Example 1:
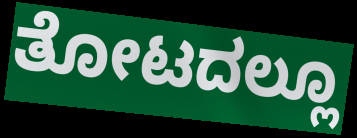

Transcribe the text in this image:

ತೋಟದಲ್ಲೂ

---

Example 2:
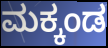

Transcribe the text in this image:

ಮಕ್ಕಂಡ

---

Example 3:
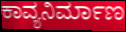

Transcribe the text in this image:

ಕಾವ್ಯನಿರ್ಮಾಣ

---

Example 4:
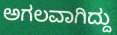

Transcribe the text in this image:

ಅಗಲವಾಗಿದ್ದು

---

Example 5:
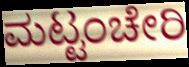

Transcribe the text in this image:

ಮಟ್ಟಂಚೇರಿ